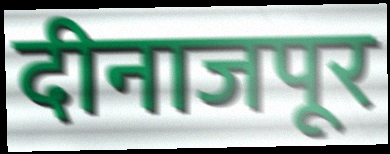
दीनाजपूर